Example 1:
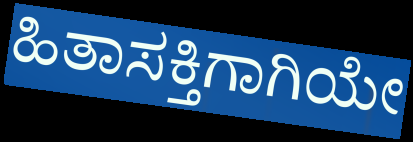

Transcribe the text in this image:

ಹಿತಾಸಕ್ತಿಗಾಗಿಯೇ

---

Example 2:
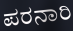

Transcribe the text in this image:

ಪರನಾರಿ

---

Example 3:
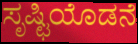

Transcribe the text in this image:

ಸೃಷ್ಟಿಯೊಡನೆ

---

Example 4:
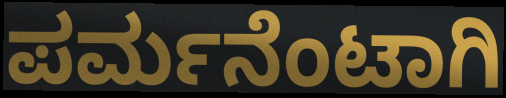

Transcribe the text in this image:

ಪರ್ಮನೆಂಟಾಗಿ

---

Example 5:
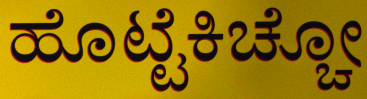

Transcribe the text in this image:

ಹೊಟ್ಟೆಕಿಚ್ಚೋ